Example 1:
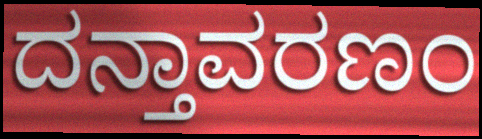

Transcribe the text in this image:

ದನ್ತಾವರಣಂ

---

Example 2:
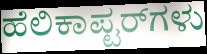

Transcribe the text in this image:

ಹೆಲಿಕಾಪ್ಟರ್‌ಗಳು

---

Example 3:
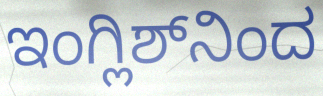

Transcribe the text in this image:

ಇಂಗ್ಲಿಶ್‌ನಿಂದ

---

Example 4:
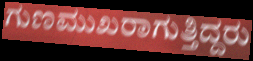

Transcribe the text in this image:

ಗುಣಮುಖರಾಗುತ್ತಿದ್ದರು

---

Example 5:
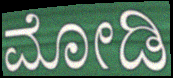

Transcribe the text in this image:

ಮೋಡಿ